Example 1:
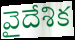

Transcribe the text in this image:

వైదేశిక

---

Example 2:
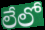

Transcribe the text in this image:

లేలో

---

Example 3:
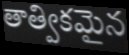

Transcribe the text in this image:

తాత్వికమైన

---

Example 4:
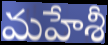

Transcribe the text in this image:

మహేశీ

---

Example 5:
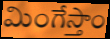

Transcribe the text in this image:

మింగేస్తాం